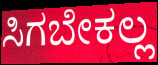
ಸಿಗಬೇಕಲ್ಲ